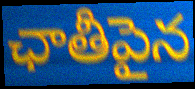
ఛాతీపైన